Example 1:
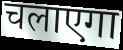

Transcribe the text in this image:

चलाएगा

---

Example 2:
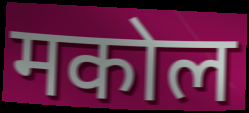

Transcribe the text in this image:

मकोल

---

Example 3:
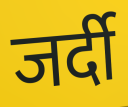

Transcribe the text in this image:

जर्दी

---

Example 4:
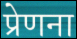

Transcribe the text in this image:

प्रेणना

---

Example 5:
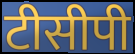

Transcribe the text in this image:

टीसीपी